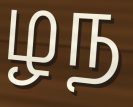
ழந